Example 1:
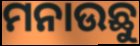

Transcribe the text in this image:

ମନାଉଛୁ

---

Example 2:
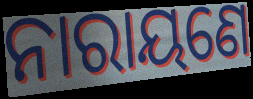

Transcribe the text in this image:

ନାରାୟଣେ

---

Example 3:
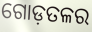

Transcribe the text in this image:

ଗୋଡ଼ତଳର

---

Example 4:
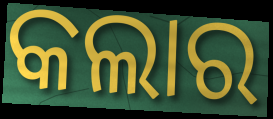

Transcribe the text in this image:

କଲାର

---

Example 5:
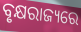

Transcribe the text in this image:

ବୃକ୍ଷରାଜ୍ୟରେ